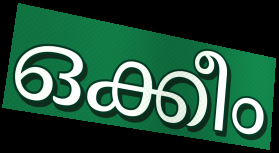
ഒക്കീം